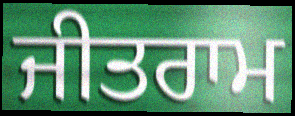
ਜੀਤਰਾਮ